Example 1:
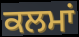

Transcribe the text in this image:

ਕਲਮਾਂ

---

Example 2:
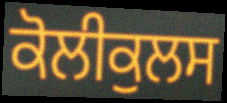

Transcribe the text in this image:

ਕੋਲੀਕੁਲਸ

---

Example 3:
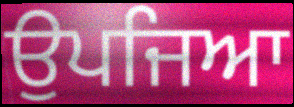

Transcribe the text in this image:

ਉਪਜਿਆ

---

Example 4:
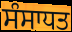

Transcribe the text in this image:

ਸੰਸਾਧਤ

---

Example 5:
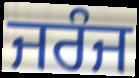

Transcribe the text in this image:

ਜਰੰਜ